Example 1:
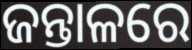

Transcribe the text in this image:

ଜନ୍ତାଳରେ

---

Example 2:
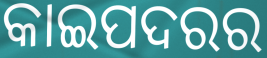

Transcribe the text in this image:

କାଇପଦରର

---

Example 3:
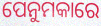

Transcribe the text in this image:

ପେନୁମକାରେ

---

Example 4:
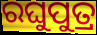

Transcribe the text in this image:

ରଘୁପୁତ୍ର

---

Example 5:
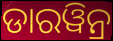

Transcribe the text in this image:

ଡାରୱିନ୍ର